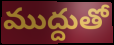
ముద్దుతో